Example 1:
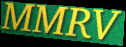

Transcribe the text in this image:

MMRV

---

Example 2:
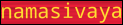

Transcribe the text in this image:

namasivaya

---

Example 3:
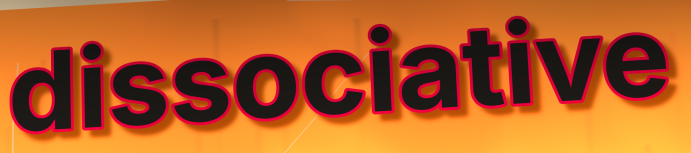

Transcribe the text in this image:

dissociative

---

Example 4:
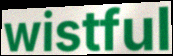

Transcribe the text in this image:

wistful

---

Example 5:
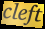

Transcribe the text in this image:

cleft